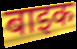
बाइक